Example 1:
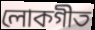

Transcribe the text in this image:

লোকগীত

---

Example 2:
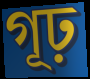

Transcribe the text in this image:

গূঢ়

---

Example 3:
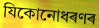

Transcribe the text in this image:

যিকোনোধৰণৰ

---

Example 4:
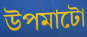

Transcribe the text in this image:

উপমাটো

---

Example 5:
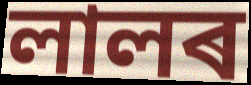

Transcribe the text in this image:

লালৰ